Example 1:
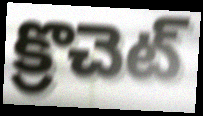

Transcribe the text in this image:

క్రొచెట్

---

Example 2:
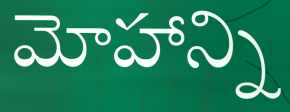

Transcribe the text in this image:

మోహాన్ని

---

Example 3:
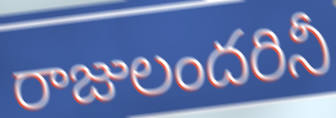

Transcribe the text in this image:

రాజులందరినీ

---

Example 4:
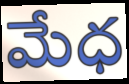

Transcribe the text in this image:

మేధ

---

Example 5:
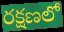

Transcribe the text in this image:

రక్షణలో